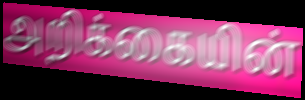
அறிக்கையின்